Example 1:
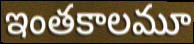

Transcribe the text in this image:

ఇంతకాలమూ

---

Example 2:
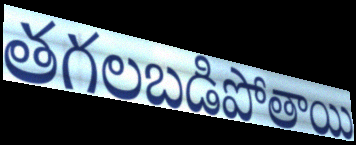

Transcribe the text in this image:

తగలబడిపోతాయి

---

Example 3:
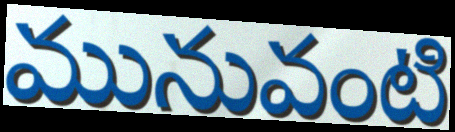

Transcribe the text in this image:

మునువంటి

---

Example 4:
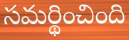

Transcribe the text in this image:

సమర్థించింది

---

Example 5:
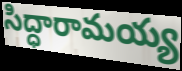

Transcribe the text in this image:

సిద్ధారామయ్య